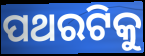
ପଥରଟିକୁ